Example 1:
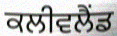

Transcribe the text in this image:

ਕਲੀਵਲੈਂਡ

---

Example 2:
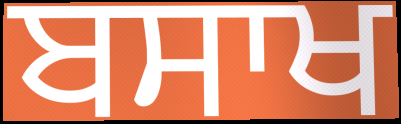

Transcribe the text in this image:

ਬਸਾਖ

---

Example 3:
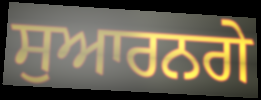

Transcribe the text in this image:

ਸੁਆਰਨਗੇ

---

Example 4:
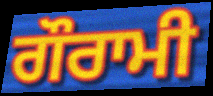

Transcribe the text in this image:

ਗੌਰਾਮੀ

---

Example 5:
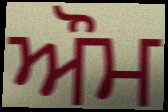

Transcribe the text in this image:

ਔਮ